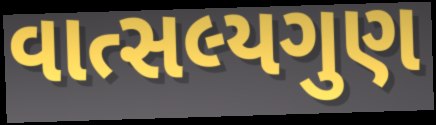
વાત્સલ્યગુણ